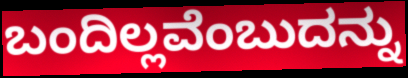
ಬಂದಿಲ್ಲವೆಂಬುದನ್ನು